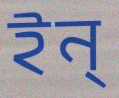
ইন্